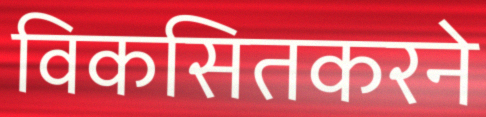
विकसितकरने